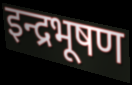
इन्द्रभूषण